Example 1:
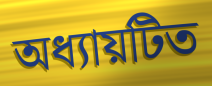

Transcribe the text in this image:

অধ্যায়টিত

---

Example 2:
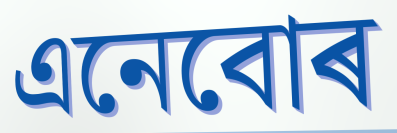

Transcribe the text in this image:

এনেবোৰ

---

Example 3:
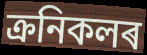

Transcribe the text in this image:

ক্ৰনিকলৰ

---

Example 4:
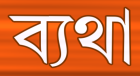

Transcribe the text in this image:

ব্যথা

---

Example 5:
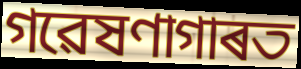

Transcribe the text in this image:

গৱেষণাগাৰত